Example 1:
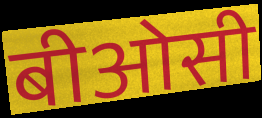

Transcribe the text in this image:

बीओसी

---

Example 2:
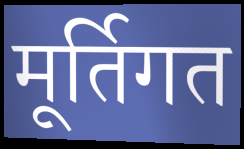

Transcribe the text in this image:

मूर्तिगत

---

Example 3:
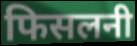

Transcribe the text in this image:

फिसलनी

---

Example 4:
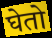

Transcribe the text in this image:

घेतो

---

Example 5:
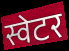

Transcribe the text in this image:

स्वेटर